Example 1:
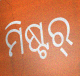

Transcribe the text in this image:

ମିଷ୍ଟର୍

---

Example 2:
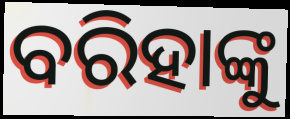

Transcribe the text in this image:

ବରିହାଙ୍କୁ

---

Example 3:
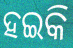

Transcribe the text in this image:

ହଇକି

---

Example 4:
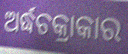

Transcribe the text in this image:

ଅର୍ଦ୍ଧଚକ୍ରାକାର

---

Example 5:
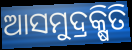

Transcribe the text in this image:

ଆସମୁଦ୍ରକ୍ଷିତି